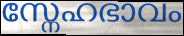
സ്നേഹഭാവം